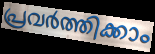
പ്രവർത്തിക്കാം